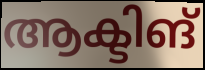
ആക്ടിങ്